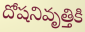
దోషనివృత్తికి